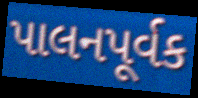
પાલનપૂર્વક